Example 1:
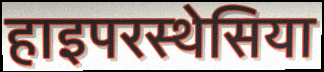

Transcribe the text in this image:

हाइपरस्थेसिया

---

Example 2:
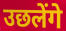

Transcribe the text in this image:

उछलेंगे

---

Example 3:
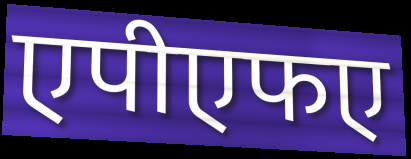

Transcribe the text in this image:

एपीएफए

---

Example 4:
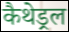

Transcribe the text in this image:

कैथेड्रल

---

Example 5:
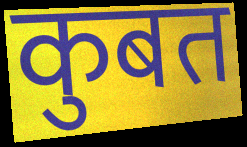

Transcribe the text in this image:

कुबत